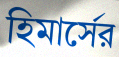
হিমার্সের